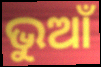
ଭୁଆଁ